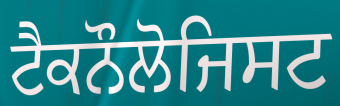
ਟੈਕਨੌਲੋਜਿਸਟ